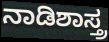
ನಾಡಿಶಾಸ್ತ್ರ